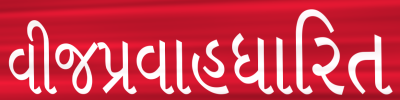
વીજપ્રવાહધારિત